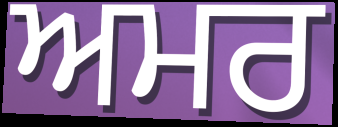
ਅਮਰ